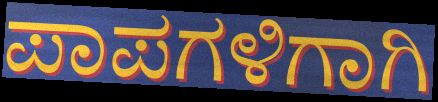
ಪಾಪಗಳಿಗಾಗಿ